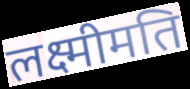
लक्ष्मीमति